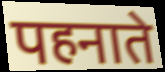
पहनाते